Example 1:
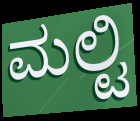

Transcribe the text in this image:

ಮಲ್ಟಿ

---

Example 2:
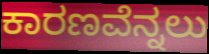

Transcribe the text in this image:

ಕಾರಣವೆನ್ನಲು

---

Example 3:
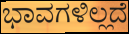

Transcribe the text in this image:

ಭಾವಗಳಿಲ್ಲದೆ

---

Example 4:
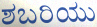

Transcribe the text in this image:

ಶಬರಿಯು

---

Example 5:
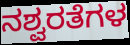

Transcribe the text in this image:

ನಶ್ವರತೆಗಳ